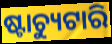
ଷ୍ଟାଚ୍ୟୁଟାରି